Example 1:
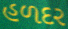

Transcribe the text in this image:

હળદર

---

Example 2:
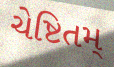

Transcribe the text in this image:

ચેષ્ટિતમ્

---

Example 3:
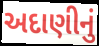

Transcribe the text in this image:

અદાણીનું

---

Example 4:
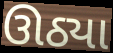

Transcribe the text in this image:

ઊઠ્યા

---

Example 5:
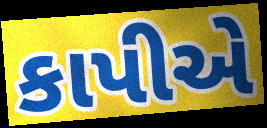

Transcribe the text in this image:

કાપીએ